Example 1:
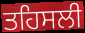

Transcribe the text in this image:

ਤਹਿਸਲੀ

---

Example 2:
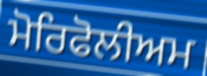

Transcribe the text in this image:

ਮੋਰਿਫੋਲੀਅਮ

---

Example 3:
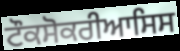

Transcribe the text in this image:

ਟੌਕਸੋਕਰੀਆਸਿਸ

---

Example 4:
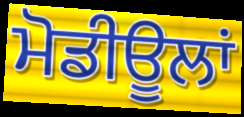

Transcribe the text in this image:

ਮੋਡੀਊਲਾਂ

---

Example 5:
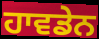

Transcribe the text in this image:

ਹਾਵਡੇਨ